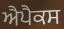
ਐਪੈਕਸ